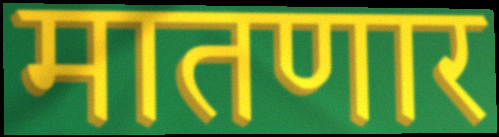
मातणार